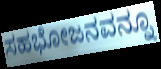
ಸಹಭೋಜನವನ್ನೂ